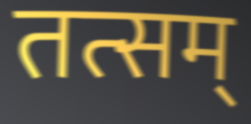
तत्सम्